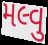
મલ્વુ